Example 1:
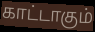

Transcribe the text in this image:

காட்டாகும்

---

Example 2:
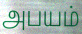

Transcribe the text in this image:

அபயம்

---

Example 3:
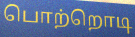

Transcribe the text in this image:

பொற்றொடி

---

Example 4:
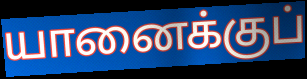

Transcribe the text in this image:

யானைக்குப்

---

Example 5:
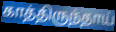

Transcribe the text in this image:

காத்திருந்தாய்